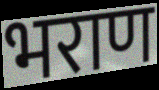
भराण